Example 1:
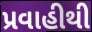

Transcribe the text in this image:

પ્રવાહીથી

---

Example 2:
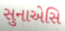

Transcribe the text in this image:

સુનાએસિ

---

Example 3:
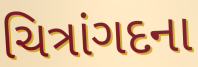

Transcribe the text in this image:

ચિત્રાંગદના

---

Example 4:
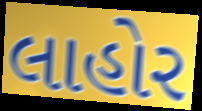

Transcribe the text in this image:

લાહોર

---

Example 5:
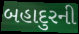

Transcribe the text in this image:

બહાદુરની